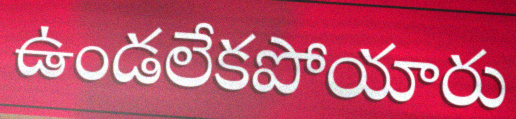
ఉండలేకపోయారు